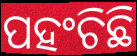
ପହଂଚିଛି